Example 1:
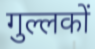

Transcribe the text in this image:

गुल्लकों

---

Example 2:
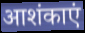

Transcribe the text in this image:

आशंकाएं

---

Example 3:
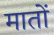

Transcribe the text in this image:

मातों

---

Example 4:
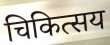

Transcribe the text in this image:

चिकित्सय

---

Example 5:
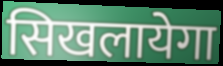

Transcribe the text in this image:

सिखलायेगा